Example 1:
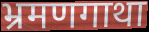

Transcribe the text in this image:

भ्रमणगाथा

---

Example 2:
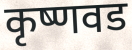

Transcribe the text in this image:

कृष्णवड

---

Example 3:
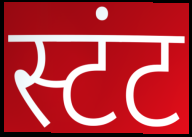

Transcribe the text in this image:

स्टंट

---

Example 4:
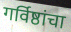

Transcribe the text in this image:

गर्विष्ठांचा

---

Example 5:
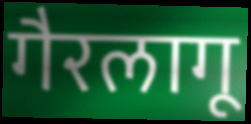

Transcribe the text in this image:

गैरलागू